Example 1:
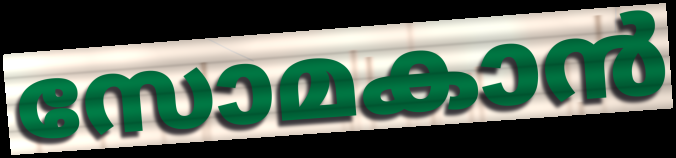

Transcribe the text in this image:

സോമകാൻ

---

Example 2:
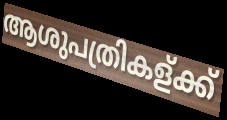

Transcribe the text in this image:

ആശുപത്രികള്ക്ക്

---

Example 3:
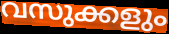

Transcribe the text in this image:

വസുക്കളും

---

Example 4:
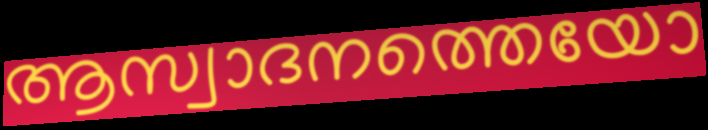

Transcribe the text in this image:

ആസ്വാദനത്തെയോ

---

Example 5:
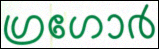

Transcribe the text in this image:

ഗ്രഗോർ